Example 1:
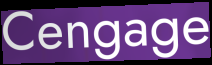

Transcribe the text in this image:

Cengage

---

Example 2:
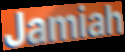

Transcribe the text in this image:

Jamiah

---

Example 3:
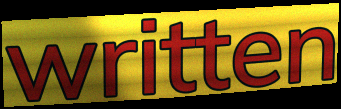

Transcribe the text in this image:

written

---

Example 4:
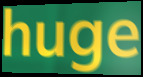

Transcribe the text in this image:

huge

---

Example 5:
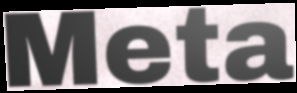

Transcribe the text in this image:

Meta